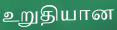
உறுதியான